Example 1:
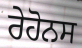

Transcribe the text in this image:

ਰੇਹੋਨਸ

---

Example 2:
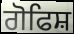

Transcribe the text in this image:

ਗੋਫਿਸ਼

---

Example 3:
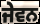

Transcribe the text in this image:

ਜੇਵਨ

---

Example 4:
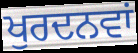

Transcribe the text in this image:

ਖੁਰਦਨਵਾਂ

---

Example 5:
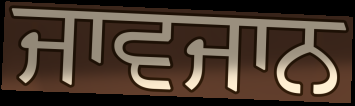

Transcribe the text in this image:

ਜਾਵਜਾਨ